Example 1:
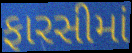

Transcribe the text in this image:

ફારસીમાં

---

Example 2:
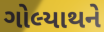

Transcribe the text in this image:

ગોલ્યાથને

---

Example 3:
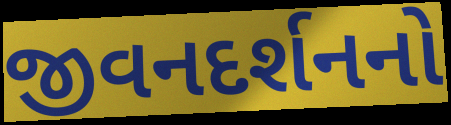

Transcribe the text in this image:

જીવનદર્શનનો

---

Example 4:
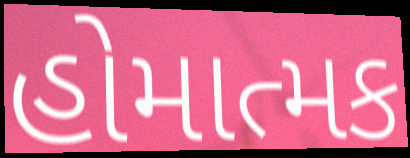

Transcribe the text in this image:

હોમાત્મક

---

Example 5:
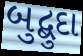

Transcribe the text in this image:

બુદ્બુદા